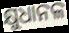
କ୍ଷୁଧାନଳ